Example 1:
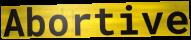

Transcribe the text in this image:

Abortive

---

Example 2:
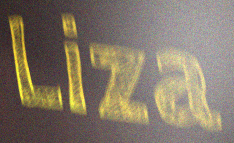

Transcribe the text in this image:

Liza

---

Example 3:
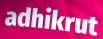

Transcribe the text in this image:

adhikrut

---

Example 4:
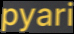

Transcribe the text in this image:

pyari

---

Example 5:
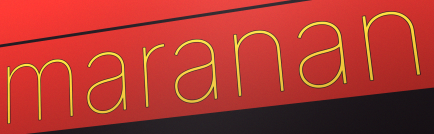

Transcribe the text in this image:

maranan